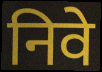
निवे